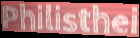
Philisthei